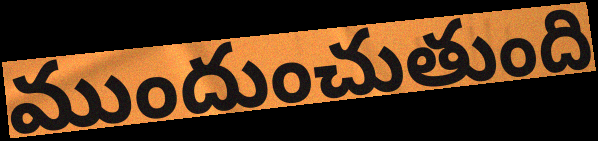
ముందుంచుతుంది